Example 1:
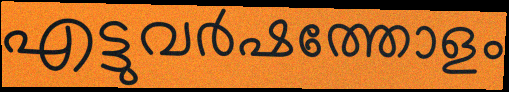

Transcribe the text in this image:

എട്ടുവർഷത്തോളം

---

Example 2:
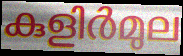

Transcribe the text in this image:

കുളിർമുല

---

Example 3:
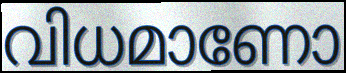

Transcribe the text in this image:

വിധമാണോ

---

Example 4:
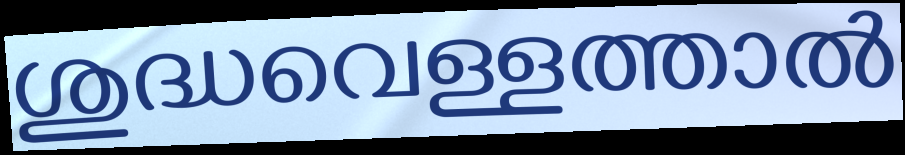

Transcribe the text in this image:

ശുദ്ധവെള്ളത്താൽ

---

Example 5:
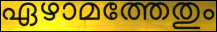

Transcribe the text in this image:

ഏഴാമത്തേതും